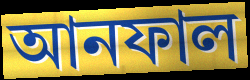
আনফাল